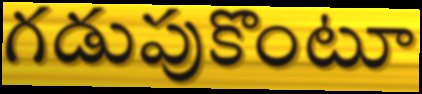
గడుపుకొంటూ